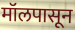
मॉलपासून